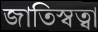
জাতিস্বত্বা